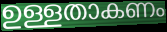
ഉള്ളതാകണം